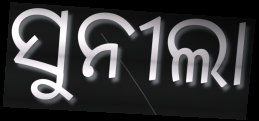
ସୁନୀଲା